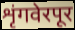
शृंगवेरपूर